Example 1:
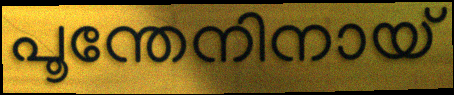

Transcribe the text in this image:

പൂന്തേനിനായ്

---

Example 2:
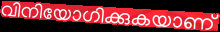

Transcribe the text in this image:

വിനിയോഗിക്കുകയാണ്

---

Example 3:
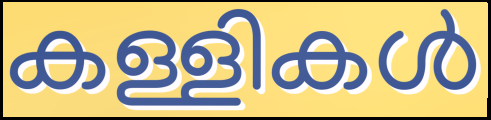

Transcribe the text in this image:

കള്ളികൾ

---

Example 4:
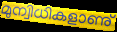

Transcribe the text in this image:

മുന്വിധികളാണു്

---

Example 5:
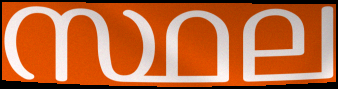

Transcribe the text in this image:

സ്ഥല